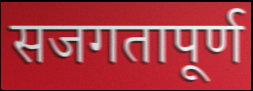
सजगतापूर्ण